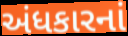
અંધકારનાં